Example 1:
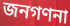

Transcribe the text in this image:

জনগণনা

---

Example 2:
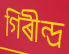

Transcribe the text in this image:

গিৰীন্দ্ৰ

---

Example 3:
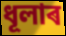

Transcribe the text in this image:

ধূলাৰ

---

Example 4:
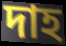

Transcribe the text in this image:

দাহ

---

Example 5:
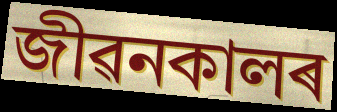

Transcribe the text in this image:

জীৱনকালৰ